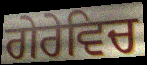
ਗੇਰੇਵਿਚ